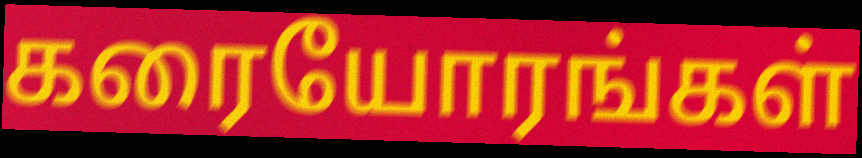
கரையோரங்கள்